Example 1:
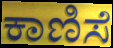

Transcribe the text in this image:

ಕಾಣಿಸೆ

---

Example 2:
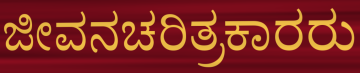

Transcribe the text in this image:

ಜೀವನಚರಿತ್ರಕಾರರು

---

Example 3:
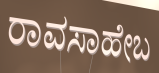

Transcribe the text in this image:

ರಾವಸಾಹೇಬ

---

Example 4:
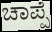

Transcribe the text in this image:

ಚಾಪ್ಪೆ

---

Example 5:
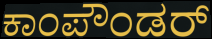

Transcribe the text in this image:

ಕಾಂಪೌಂಡರ್